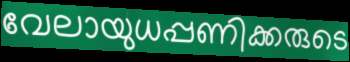
വേലായുധപ്പണിക്കരുടെ